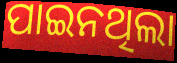
ପାଇନଥିଲା